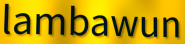
lambawun